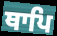
ਥਾਪਿ